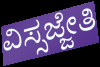
ವಿಸ್ಸಜ್ಜೇತಿ